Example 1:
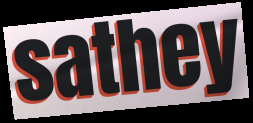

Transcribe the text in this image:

sathey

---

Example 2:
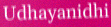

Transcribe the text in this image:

Udhayanidhi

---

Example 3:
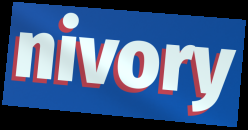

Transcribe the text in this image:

nivory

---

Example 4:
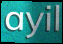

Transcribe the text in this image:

ayil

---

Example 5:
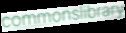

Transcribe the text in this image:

commonslibrary